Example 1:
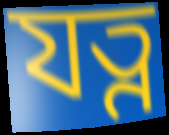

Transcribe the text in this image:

যত্ন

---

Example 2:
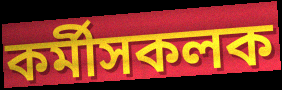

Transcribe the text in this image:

কৰ্মীসকলক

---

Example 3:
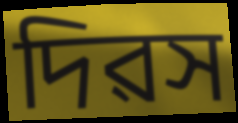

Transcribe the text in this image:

দিৱস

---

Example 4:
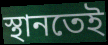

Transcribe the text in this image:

স্থানতেই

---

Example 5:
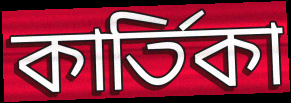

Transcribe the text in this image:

কাৰ্তিকা